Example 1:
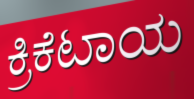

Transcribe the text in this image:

ಕ್ರಿಕೆಟಾಯ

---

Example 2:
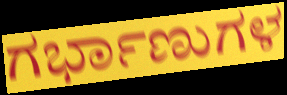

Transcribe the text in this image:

ಗರ್ಭಾಣುಗಳ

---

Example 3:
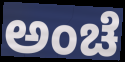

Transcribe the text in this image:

ಅಂಚೆ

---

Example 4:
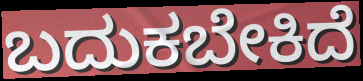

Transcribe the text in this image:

ಬದುಕಬೇಕಿದೆ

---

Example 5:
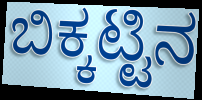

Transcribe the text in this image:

ಬಿಕ್ಕಟ್ಟಿನ